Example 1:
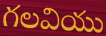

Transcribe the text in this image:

గలవియు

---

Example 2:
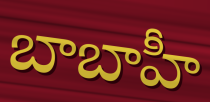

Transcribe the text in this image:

బాబాహీ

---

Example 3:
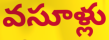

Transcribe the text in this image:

వసూళ్లు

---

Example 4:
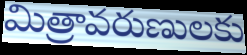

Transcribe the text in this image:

మిత్రావరుణులకు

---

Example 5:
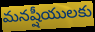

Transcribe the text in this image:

మనష్షీయులకు